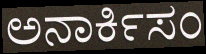
ಅನಾರ್ಕಿಸಂ